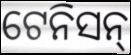
ଟେନିସନ୍